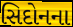
સિદોનના